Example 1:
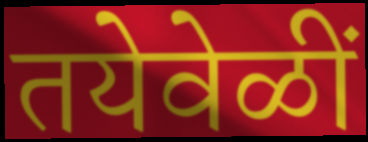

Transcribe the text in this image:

तयेवेळीं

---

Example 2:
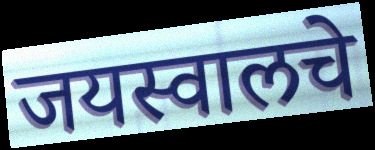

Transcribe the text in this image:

जयस्वालचे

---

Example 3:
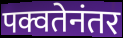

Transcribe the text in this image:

पक्वतेनंतर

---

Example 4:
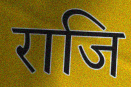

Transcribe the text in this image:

राजि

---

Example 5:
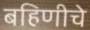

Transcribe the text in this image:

बहिणीचे